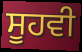
ਸੂਹਵੀ